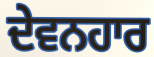
ਦੇਵਨਹਾਰ